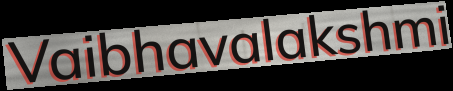
Vaibhavalakshmi